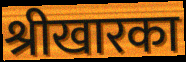
श्रीखारका